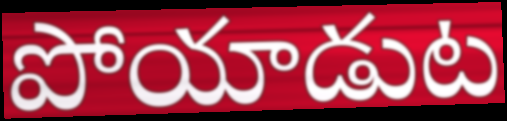
పోయాడుట